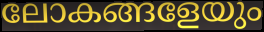
ലോകങ്ങളേയും